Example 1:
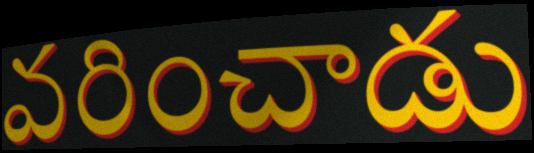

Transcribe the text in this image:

వరించాడు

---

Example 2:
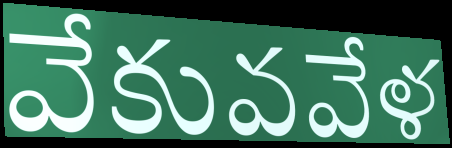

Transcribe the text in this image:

వేకువవేళ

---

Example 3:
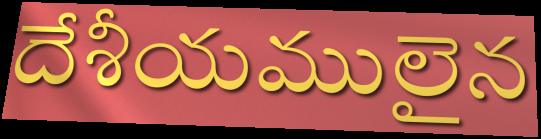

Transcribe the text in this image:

దేశీయములైన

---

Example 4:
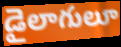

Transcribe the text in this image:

డైలాగులూ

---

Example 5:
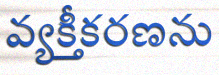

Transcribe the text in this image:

వ్యక్తీకరణను